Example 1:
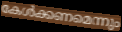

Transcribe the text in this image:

കേൾക്കണമെന്നും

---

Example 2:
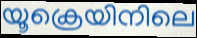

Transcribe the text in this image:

യൂക്രെയിനിലെ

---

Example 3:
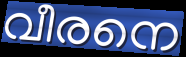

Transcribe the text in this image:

വീരനെ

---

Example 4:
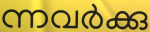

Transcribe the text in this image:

ന്നവർക്കു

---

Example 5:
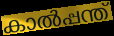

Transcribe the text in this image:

കാൽപ്പന്ത്